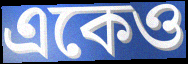
একেও